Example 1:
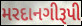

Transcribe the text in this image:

મરદાનગીરૂપી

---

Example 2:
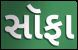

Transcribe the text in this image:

સૉફા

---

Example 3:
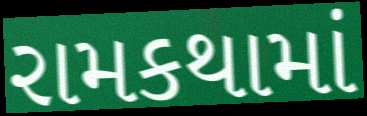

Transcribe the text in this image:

રામકથામાં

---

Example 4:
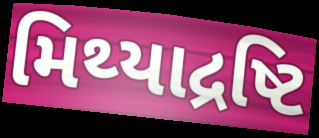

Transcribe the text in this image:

મિથ્યાદ્રષ્ટિ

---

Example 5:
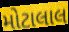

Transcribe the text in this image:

મોટાલાલ